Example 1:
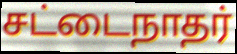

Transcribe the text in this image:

சட்டைநாதர்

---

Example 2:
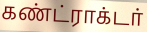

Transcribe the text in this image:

கண்ட்ராக்டர்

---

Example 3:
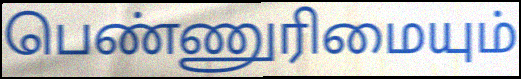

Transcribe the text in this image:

பெண்ணுரிமையும்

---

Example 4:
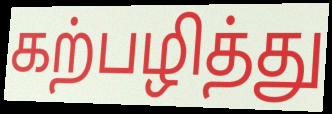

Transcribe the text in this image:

கற்பழித்து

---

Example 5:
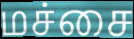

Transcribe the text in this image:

மச்சை